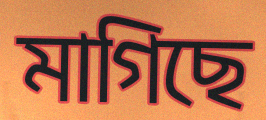
মাগিছে